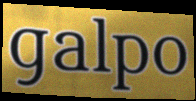
galpo